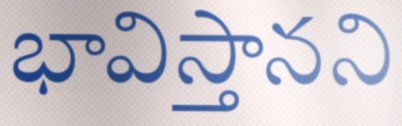
భావిస్తానని